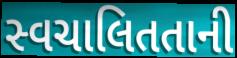
સ્વચાલિતતાની